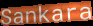
Sankara